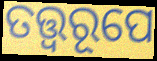
ତତ୍ତ୍ୱରୂପେ